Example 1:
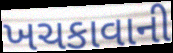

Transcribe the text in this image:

ખચકાવાની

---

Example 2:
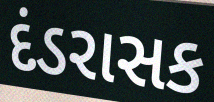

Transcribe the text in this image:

દંડરાસક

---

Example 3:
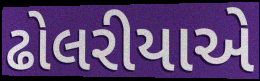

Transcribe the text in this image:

ઢોલરીયાએ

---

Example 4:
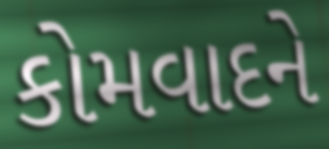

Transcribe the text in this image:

કોમવાદને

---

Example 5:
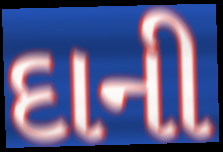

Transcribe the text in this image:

દાની